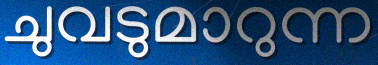
ചുവടുമാറുന്ന